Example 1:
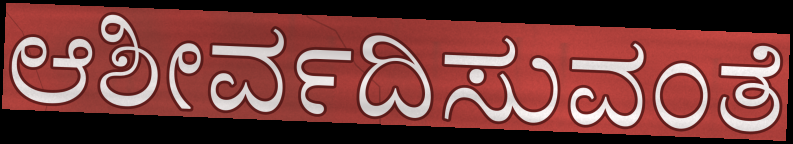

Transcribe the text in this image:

ಆಶೀರ್ವದಿಸುವಂತೆ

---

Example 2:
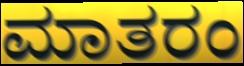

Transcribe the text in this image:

ಮಾತರಂ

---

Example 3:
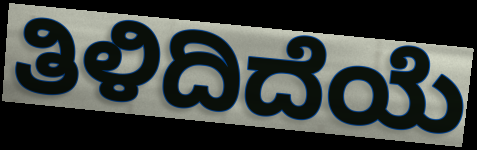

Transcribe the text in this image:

ತಿಳಿದಿದೆಯೆ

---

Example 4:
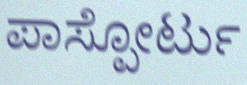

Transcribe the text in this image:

ಪಾಸ್ಪೋರ್ಟು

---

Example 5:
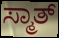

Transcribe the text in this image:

ಸ್ಮಾತ್